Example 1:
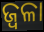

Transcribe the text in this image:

ଜ୍ଵଳା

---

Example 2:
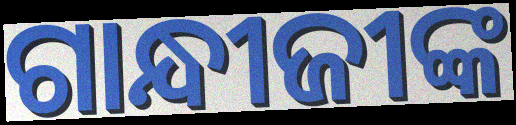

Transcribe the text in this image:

ଗାନ୍ଧୀଜୀଙ୍କ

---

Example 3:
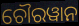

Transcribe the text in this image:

ଚୌରୱାନ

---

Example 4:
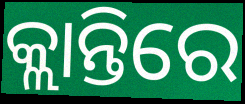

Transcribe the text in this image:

କ୍ଲାନ୍ତିରେ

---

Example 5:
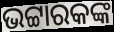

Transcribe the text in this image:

ଭଟ୍ଟାରକଙ୍କ